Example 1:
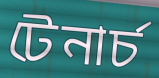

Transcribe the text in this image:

টেনাৰ্চ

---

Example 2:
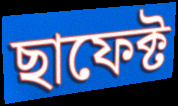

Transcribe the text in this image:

ছাফেক্ট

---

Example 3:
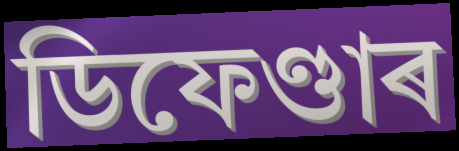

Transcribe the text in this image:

ডিফেণ্ডাৰ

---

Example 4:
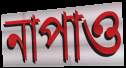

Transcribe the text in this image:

নাপাও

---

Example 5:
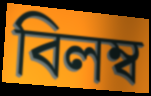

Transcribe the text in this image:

বিলম্ব